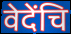
वेदेंचि